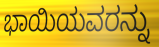
ಭಾಯಿಯವರನ್ನು